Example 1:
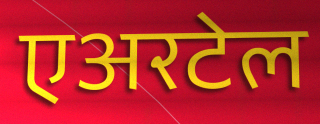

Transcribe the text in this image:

एअरटेल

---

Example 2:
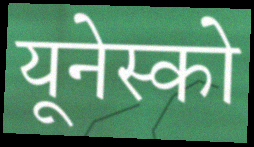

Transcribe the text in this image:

यूनेस्को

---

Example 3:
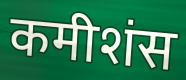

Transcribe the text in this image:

कमीशंस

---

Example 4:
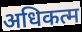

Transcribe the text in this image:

अधिकत्म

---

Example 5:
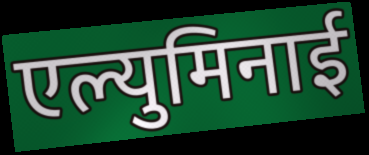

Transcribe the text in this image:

एल्युमिनाई